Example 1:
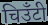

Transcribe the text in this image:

चिउँटी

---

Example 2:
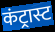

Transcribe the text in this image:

कंट्रास्ट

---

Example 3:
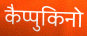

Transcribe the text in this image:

कैप्पुकिनो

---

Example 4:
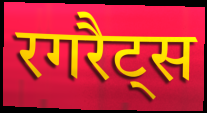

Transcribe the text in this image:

रगरैट्स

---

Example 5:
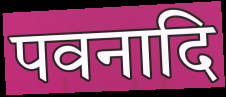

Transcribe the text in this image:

पवनादि